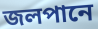
জলপানে